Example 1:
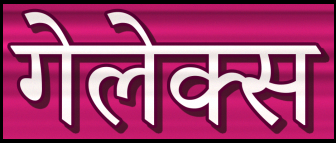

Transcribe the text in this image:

गेलेक्स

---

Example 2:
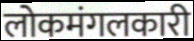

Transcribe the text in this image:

लोकमंगलकारी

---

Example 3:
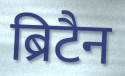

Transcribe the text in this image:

ब्रिटैन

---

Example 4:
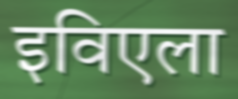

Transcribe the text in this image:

इविएला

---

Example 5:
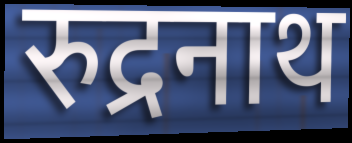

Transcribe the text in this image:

रुद्रनाथ